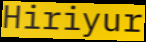
Hiriyur